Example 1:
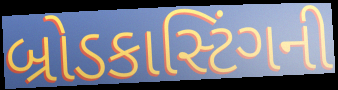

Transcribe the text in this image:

બ્રોડકાસ્ટિંગની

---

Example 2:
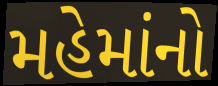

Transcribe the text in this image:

મહેમાંનો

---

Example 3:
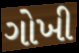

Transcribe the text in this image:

ગોખી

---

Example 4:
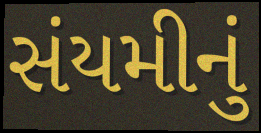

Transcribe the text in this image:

સંયમીનું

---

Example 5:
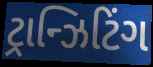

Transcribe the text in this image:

ટ્રાન્ઝિટિંગ